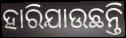
ହାରିଯାଉଛନ୍ତି